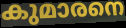
കുമാരനെ